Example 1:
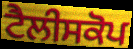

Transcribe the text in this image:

ਟੈਲੀਸਕੋਪ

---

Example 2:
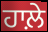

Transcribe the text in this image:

ਹਾਲ਼ੇ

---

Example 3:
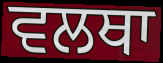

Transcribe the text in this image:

ਵਲਥਾ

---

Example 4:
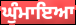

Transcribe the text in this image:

ਘੁੰਮਾਇਆ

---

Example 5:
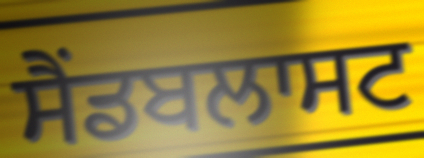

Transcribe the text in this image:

ਸੈਂਡਬਲਾਸਟ